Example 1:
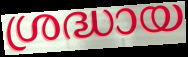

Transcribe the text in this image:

ശ്രദ്ധായ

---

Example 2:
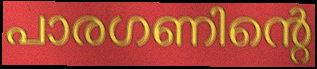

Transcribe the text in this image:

പാരഗണിന്റെ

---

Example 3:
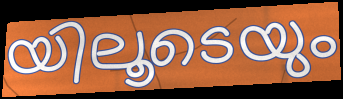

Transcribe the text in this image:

യിലൂടെയും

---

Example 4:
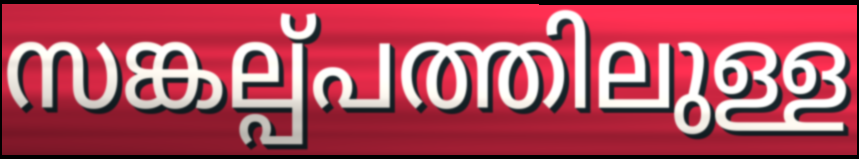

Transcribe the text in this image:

സങ്കല്പ്പത്തിലുള്ള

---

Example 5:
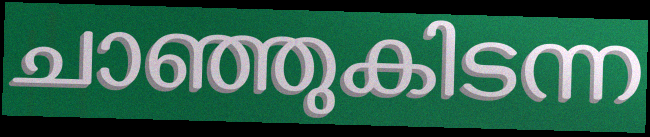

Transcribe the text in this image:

ചാഞ്ഞുകിടന്ന